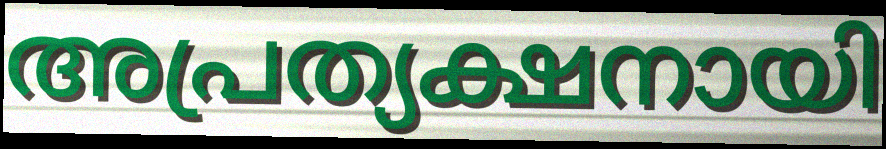
അപ്രത്യക്ഷനായി